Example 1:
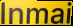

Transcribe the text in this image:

Inmai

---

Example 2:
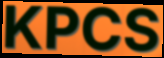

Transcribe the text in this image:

KPCS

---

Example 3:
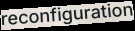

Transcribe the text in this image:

reconfiguration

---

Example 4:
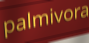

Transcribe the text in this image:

palmivora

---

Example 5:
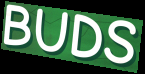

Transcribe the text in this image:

BUDS